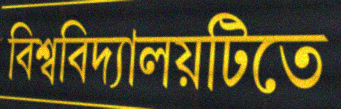
বিশ্ববিদ্যালয়টিতে